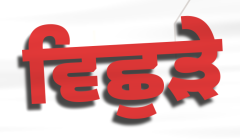
ਵਿਛੁੜੇ